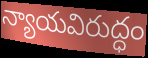
న్యాయవిరుద్ధం